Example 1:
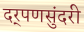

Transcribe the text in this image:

दर्पणसुंदरी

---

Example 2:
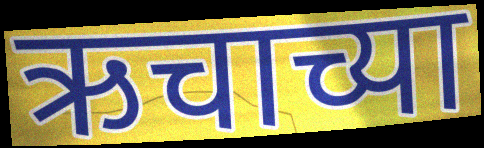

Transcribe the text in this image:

ऋचाच्या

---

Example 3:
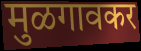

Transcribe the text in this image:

मुळगावकर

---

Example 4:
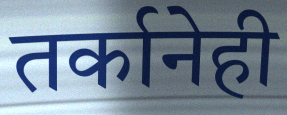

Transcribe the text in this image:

तर्कानेही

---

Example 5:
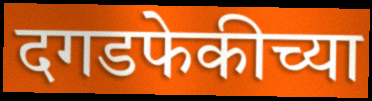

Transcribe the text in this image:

दगडफेकीच्या